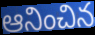
ఆనించిన